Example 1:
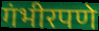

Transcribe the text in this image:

गंभीरपणे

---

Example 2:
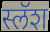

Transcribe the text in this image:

स्लॅश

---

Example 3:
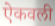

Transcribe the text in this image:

ऐकवली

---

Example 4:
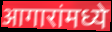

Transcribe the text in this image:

आगारांमध्ये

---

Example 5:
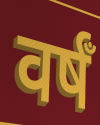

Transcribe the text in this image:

वर्षँ